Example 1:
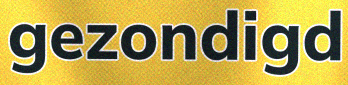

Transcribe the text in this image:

gezondigd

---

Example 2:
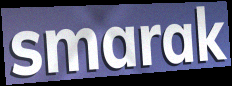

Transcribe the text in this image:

smarak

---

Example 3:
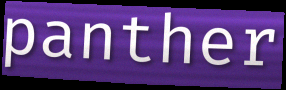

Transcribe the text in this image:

panther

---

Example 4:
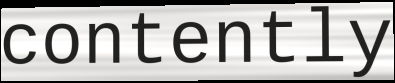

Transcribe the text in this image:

contently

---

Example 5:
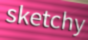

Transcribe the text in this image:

sketchy